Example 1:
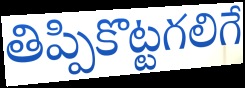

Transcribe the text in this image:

తిప్పికొట్టగలిగే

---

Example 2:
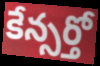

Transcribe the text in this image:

కేన్సర్తో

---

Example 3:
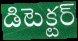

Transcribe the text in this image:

డిటెక్టర్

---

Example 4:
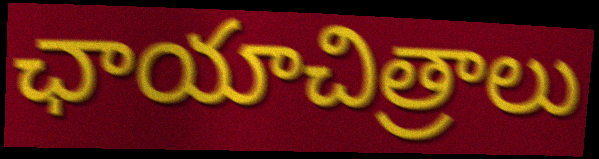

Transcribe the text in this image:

ఛాయాచిత్రాలు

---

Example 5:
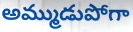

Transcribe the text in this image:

అమ్ముడుపోగా